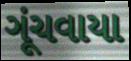
ગૂંચવાયા